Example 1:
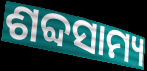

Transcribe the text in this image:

ଶବ୍ଦସାମ୍ୟ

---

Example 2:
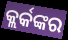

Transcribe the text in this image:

କ୍ଲର୍କଙ୍କର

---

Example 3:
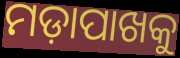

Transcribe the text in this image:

ମଡ଼ାପାଖକୁ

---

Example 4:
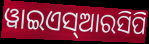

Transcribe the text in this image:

ୱାଇଏସ୍ଆରସିପି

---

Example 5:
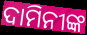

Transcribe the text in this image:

ଦାମିନୀଙ୍କ